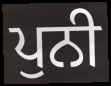
ਪੁਨੀ